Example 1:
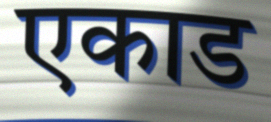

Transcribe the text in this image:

एकाड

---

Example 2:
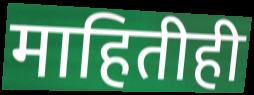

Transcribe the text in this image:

माहितीही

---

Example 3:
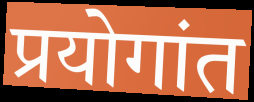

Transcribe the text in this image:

प्रयोगांत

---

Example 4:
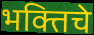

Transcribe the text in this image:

भक्तिचे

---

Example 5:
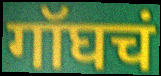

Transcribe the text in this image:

गॉघचं